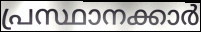
പ്രസ്ഥാനക്കാർ